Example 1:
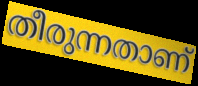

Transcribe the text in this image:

തീരുന്നതാണ്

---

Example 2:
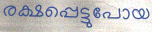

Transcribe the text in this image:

രക്ഷപ്പെട്ടുപോയ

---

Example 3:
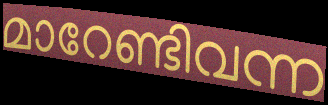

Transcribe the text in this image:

മാറേണ്ടിവന്ന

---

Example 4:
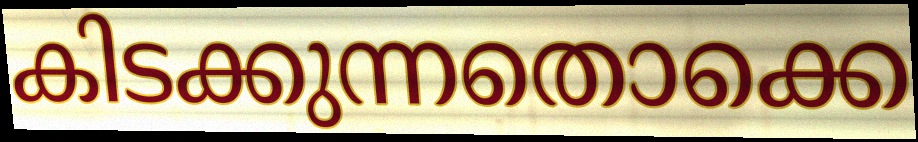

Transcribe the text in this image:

കിടക്കുന്നതൊക്കെ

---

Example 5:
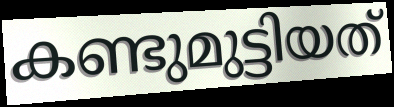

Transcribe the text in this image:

കണ്ടുമുട്ടിയത്